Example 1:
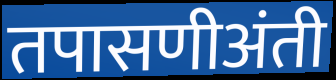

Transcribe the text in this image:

तपासणीअंती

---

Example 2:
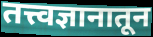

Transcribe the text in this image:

तत्त्वज्ञानातून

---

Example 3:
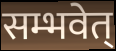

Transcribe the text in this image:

सम्भवेत्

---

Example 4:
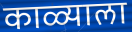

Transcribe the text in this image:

काळ्याला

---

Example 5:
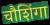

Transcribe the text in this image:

चौशिंगा